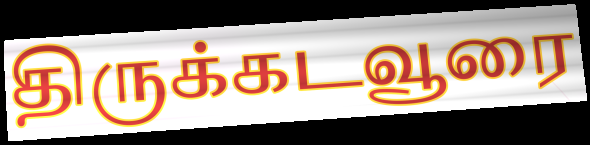
திருக்கடவூரை